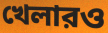
খেলারও